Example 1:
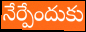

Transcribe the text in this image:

నేర్పేందుకు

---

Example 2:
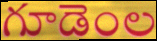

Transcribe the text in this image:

గూడెంల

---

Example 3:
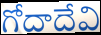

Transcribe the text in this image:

గోదాదేవి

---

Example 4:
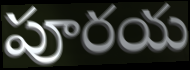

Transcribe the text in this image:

పూరయ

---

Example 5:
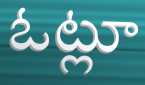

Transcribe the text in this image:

ఓట్లూ